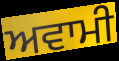
ਅਵਾਮੀ